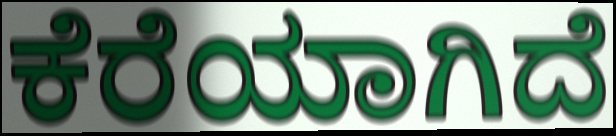
ಕೆರೆಯಾಗಿದೆ